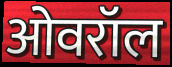
ओवरॉल